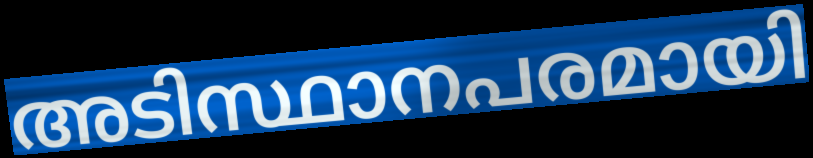
അടിസ്ഥാനപരമായി